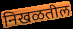
निखळतील